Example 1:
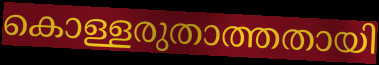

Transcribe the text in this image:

കൊള്ളരുതാത്തതായി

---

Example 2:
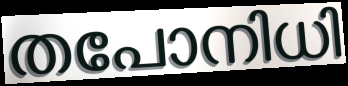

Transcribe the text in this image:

തപോനിധി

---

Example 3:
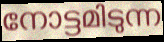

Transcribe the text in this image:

നോട്ടമിടുന്ന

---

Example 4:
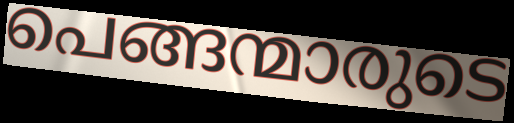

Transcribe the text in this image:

പെങ്ങന്മാരുടെ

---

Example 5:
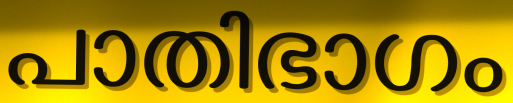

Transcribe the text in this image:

പാതിഭാഗം